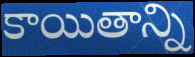
కాయితాన్ని